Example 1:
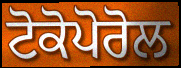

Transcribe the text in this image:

ਟੋਕੋਪੋਰੋਲ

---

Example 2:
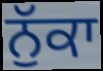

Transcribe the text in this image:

ਨੁੱਕਾ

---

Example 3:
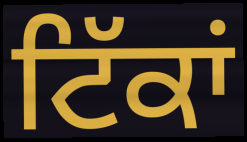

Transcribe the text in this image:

ਟਿੱਕਾਂ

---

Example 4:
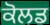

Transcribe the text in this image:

ਕੋਲਡ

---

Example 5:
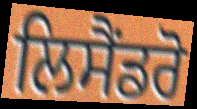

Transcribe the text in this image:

ਲਿਸੈਂਡਰੋ